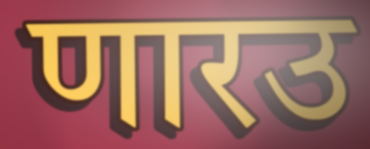
णारउ